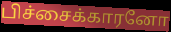
பிச்சைக்காரனோ